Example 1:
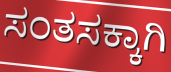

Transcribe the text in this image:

ಸಂತಸಕ್ಕಾಗಿ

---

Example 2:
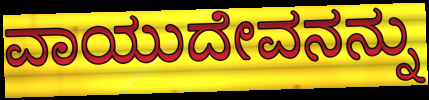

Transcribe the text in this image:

ವಾಯುದೇವನನ್ನು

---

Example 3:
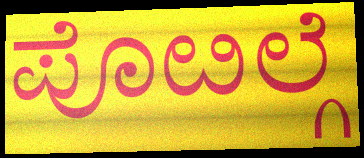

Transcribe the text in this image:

ಪೊೞಲ್ಗೆ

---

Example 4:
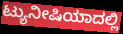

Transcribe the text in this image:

ಟ್ಯುನೀಷಿಯಾದಲ್ಲಿ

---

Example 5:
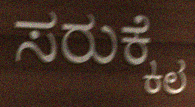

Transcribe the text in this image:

ಸರುಕ್ಕೈ